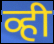
व्ही